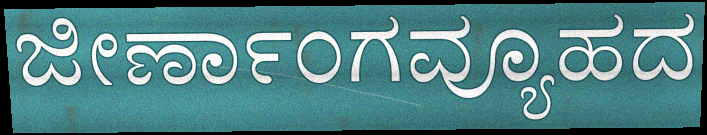
ಜೀರ್ಣಾಂಗವ್ಯೂಹದ